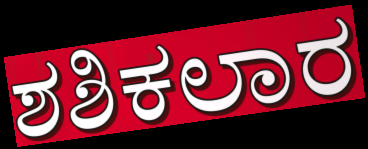
ಶಶಿಕಲಾರ